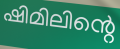
ഷിമിലിന്റെ